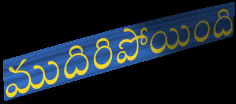
ముదిరిపోయింది